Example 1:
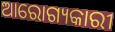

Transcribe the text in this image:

ଆରୋଗ୍ୟକାରୀ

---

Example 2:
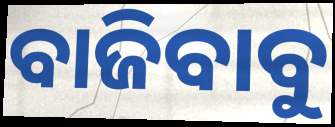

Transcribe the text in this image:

ବାଜିବାବୁ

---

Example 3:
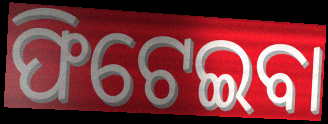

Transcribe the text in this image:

ଫିଟେଇବା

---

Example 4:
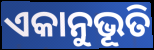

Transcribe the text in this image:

ଏକାନୁଭୂତି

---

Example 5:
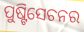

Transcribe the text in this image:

ପୁଷ୍ଟିସେଚନର